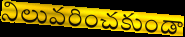
నిలువరించకుండా